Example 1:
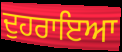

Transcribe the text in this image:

ਦੁਹਰਾਇਆ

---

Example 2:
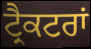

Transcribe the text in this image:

ਟ੍ਰੈਕਟਰਾਂ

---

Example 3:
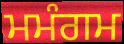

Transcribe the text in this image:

ਮਮੰਗਮ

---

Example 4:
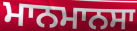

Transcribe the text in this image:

ਮਾਨਮਾਨਸਾ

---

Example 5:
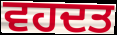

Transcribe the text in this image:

ਵਹਦਤ